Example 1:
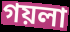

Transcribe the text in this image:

গয়লা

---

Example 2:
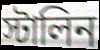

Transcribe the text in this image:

স্টালিন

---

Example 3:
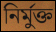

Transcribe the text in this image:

নির্মুক্ত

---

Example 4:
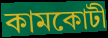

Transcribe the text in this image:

কামকোটী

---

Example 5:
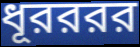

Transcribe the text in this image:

ধূরররর